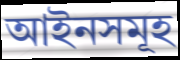
আইনসমূহ